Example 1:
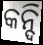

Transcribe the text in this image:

କନ୍ଦି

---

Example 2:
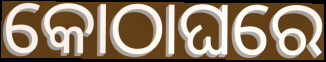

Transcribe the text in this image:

କୋଠାଘରେ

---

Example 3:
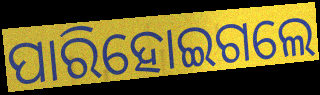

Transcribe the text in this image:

ପାରିହୋଇଗଲେ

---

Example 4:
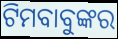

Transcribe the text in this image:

ଟିମବାବୁଙ୍କର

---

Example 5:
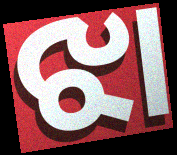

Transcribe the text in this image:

ଝା